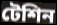
টেশিন